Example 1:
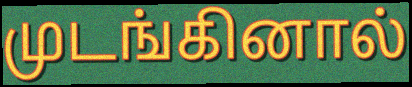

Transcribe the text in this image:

முடங்கினால்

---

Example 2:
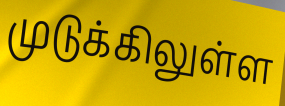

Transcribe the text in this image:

முடுக்கிலுள்ள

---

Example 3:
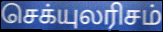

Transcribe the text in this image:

செக்யுலரிசம்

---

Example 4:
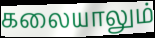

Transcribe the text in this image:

கலையாலும்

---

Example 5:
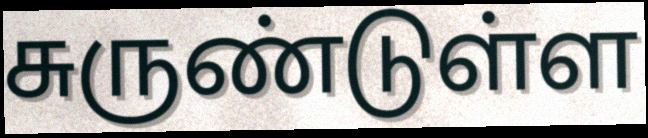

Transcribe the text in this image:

சுருண்டுள்ள